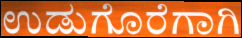
ಉಡುಗೊರೆಗಾಗಿ